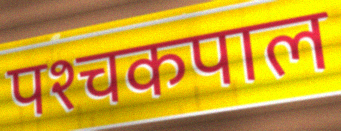
पश्चकपाल